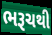
ભરૂચથી